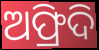
ଅଫ୍ରିଦି